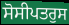
ਸੋਸੀਪਤਰੁਸ